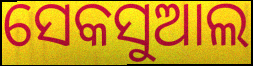
ସେକସୁଆଲ